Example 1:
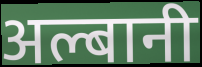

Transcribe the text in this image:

अल्बानी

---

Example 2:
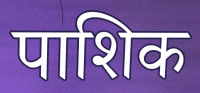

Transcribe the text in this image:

पाशिक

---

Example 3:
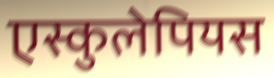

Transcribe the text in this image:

एस्कुलेपियस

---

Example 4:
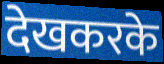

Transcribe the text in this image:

देखकरके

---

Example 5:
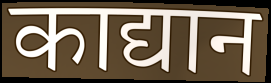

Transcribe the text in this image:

काद्यान